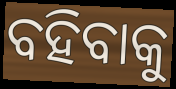
ବହିବାକୁ